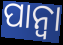
ପାନ୍ଵା